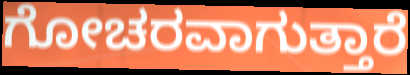
ಗೋಚರವಾಗುತ್ತಾರೆ